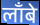
लाँबे